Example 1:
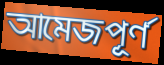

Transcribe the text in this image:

আমেজপূর্ণ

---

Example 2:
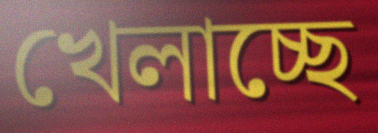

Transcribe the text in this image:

খেলাচ্ছে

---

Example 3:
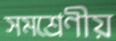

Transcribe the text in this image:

সমশ্রেণীয়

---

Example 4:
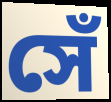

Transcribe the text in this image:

সেঁ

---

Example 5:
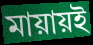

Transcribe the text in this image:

মায়ায়ই